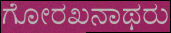
ಗೋರಖನಾಥರು